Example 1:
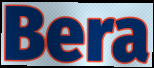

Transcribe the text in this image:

Bera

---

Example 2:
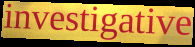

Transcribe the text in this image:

investigative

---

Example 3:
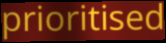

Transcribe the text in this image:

prioritised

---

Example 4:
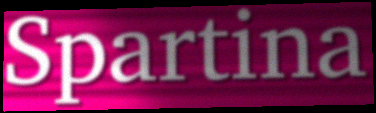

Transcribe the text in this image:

Spartina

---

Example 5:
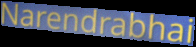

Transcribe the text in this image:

Narendrabhai